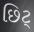
છિટ્